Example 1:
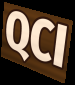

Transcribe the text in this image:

QCI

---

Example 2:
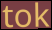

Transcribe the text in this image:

tok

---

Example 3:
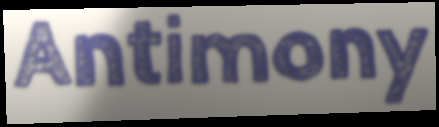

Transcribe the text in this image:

Antimony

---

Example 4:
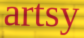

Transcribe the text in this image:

artsy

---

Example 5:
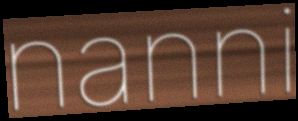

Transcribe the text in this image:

nanni